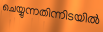
ചെയ്യുന്നതിന്നിടയിൽ